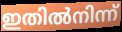
ഇതിൽനിന്ന്